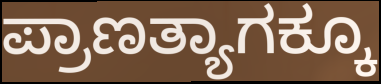
ಪ್ರಾಣತ್ಯಾಗಕ್ಕೂ